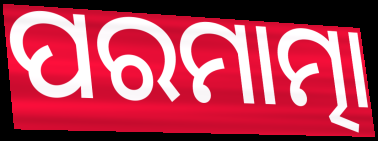
ପରମାତ୍ମା